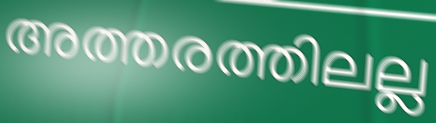
അത്തരത്തിലല്ല